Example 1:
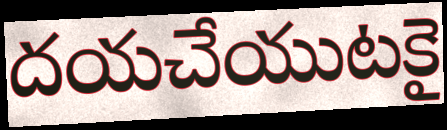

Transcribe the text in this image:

దయచేయుటకై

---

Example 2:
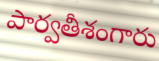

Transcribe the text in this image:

పార్వతీశంగారు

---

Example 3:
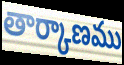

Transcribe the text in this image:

తార్కాణము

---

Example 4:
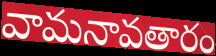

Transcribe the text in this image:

వామనావతారం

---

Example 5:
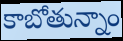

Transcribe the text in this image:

కాబోతున్నాం